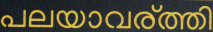
പലയാവര്ത്തി